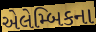
એલેમ્બિકના